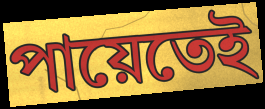
পায়েতেই